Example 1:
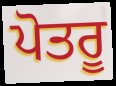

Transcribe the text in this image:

ਪੋਤਰੂ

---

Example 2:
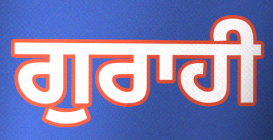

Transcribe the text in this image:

ਗੁਰਾਹੀ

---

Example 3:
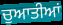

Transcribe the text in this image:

ਚੁਆਤੀਆਂ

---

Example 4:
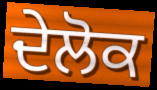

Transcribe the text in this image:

ਦੇਲੋਕ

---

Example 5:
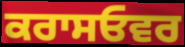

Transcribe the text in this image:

ਕਰਾਸਓਵਰ